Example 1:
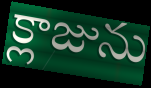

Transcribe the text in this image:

క్లాజును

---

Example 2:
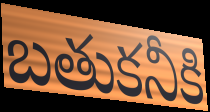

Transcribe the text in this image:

బతుకనీకి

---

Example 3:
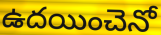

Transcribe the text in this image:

ఉదయించెనో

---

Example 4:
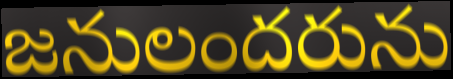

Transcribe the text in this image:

జనులందరును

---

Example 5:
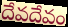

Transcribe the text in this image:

దేవదేవం